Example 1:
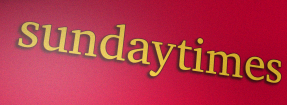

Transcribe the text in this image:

sundaytimes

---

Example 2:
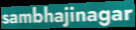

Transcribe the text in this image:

sambhajinagar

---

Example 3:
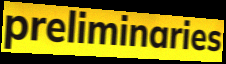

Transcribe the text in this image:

preliminaries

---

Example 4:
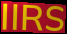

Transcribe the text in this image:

IIRS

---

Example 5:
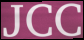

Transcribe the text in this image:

JCC